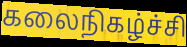
கலைநிகழ்ச்சி